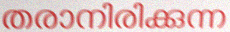
തരാനിരിക്കുന്ന